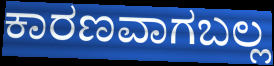
ಕಾರಣವಾಗಬಲ್ಲ